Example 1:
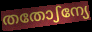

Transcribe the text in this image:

തതോഽന്യേ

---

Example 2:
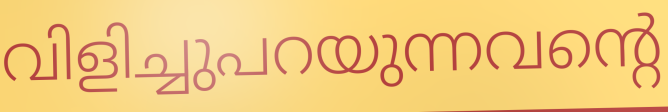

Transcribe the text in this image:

വിളിച്ചുപറയുന്നവന്റെ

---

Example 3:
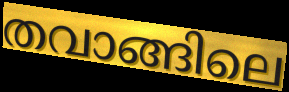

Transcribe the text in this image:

തവാങ്ങിലെ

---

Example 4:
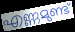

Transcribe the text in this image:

എണ്ണമുണ്ട്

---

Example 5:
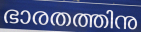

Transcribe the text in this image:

ഭാരതത്തിനു